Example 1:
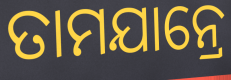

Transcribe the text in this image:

ତାମଯାନ୍ରେ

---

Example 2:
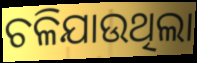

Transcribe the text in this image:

ଚଳିଯାଉଥିଲା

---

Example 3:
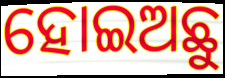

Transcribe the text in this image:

ହୋଇଅଛୁ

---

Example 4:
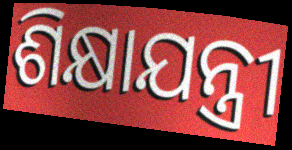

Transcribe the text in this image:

ଶିକ୍ଷାଯନ୍ତ୍ରୀ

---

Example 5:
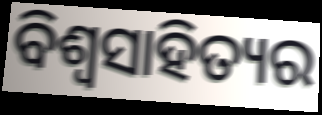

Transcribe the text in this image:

ବିଶ୍ଵସାହିତ୍ୟର